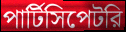
পার্টিসিপেটরি